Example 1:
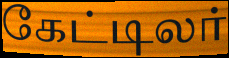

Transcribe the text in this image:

கேட்டிலர்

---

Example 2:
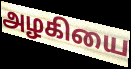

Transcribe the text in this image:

அழகியை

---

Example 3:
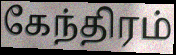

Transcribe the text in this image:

கேந்திரம்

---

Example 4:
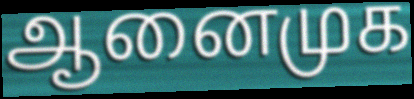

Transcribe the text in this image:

ஆனைமுக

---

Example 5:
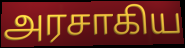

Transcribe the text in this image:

அரசாகிய